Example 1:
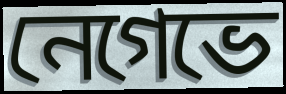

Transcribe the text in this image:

নেগেভে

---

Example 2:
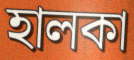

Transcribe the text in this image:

হালকা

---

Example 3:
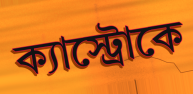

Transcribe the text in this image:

ক্যাস্ট্রোকে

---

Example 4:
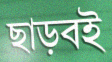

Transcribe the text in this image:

ছাড়বই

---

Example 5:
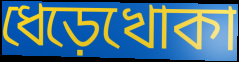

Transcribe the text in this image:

ধেড়েখোকা